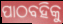
ପାଠବହିକୁ